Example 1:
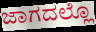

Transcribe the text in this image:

ಜಾಗದಲ್ಲೊ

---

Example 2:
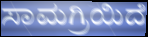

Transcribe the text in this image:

ಸಾಮಗ್ರಿಯಿದೆ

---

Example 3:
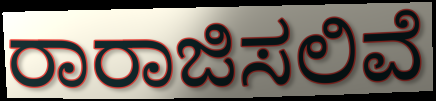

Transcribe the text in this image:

ರಾರಾಜಿಸಲಿವೆ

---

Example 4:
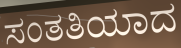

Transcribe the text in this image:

ಸಂತತಿಯಾದ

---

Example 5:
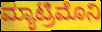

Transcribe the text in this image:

ಮ್ಯಾಟ್ರಿಮೊನಿ